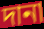
দানা